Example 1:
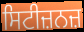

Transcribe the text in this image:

ਸਿਟੀਜ਼ਨਜ਼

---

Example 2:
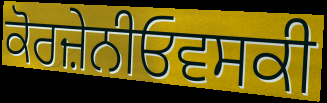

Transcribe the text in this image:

ਕੋਰਜ਼ੇਨੀਓਵਸਕੀ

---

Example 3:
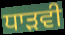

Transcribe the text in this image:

ਧਾੜਵੀ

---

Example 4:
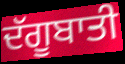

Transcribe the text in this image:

ਦੱਗੂਬਾਤੀ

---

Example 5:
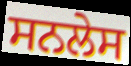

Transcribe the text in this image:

ਸਨਲੇਸ